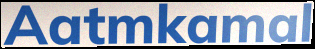
Aatmkamal